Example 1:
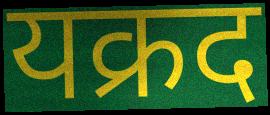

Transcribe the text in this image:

यक्रद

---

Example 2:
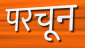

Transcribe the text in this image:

परचून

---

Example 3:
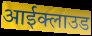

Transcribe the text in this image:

आईक्लाउड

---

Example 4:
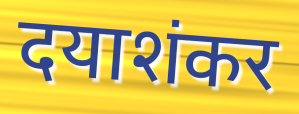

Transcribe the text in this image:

दयाशंकर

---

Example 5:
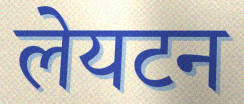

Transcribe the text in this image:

लेयटन